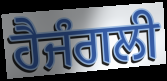
ਹੈਜੰਗਲੀ